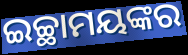
ଇଚ୍ଛାମୟଙ୍କର